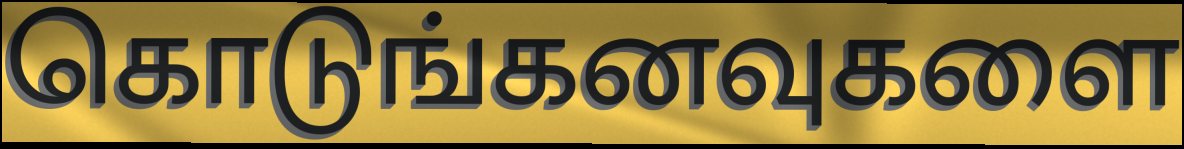
கொடுங்கனவுகளை